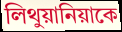
লিথুয়ানিয়াকে